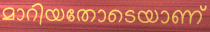
മാറിയതോടെയാണ്